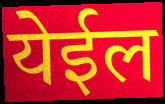
येईल